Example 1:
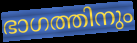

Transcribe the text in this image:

ഭാഗത്തിനും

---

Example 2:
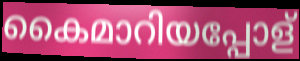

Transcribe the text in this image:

കൈമാറിയപ്പോള്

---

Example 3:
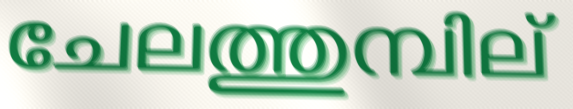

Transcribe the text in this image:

ചേലത്തുമ്പില്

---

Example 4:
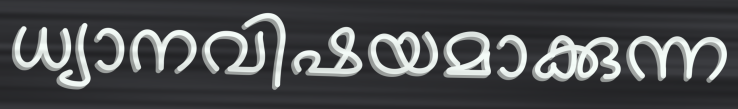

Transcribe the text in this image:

ധ്യാനവിഷയമാക്കുന്ന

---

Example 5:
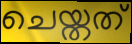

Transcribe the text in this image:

ചെയ്തത്